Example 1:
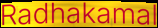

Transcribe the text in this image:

Radhakamal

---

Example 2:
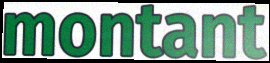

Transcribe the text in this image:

montant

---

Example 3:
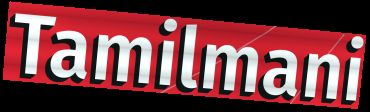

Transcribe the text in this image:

Tamilmani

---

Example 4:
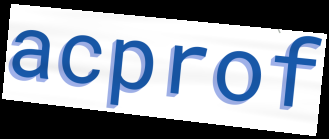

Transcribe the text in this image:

acprof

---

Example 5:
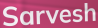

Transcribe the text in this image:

Sarvesh